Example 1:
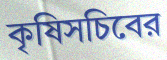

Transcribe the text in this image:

কৃষিসচিবের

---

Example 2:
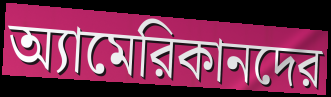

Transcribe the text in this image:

অ্যামেরিকানদের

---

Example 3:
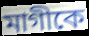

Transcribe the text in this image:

মাগীকে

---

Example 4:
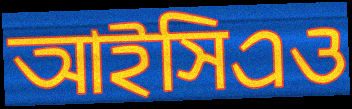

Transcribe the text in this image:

আইসিএও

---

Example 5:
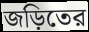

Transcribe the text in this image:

জড়িতের